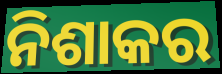
ନିଶାକର